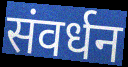
संवर्धन